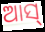
ଆସ୍